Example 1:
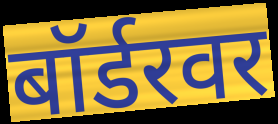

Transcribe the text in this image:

बॉर्डरवर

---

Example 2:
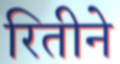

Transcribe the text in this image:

रितीने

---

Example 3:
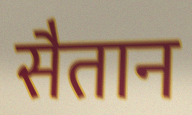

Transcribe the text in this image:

सैतान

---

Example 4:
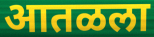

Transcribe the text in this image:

आतळला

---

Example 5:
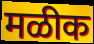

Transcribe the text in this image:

मळीक